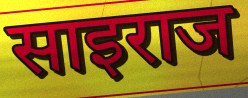
साइराज